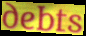
debts